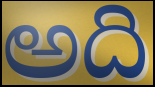
అది